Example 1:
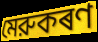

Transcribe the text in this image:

মেৰুকৰণ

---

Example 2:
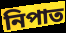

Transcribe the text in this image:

নিপাত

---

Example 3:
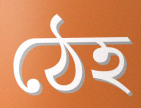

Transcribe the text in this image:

ঠেহ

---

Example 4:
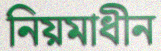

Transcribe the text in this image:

নিয়মাধীন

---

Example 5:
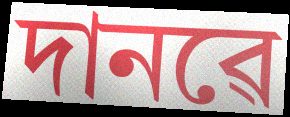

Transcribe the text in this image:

দানৱে